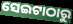
ସେଇଟାଠାରୁ